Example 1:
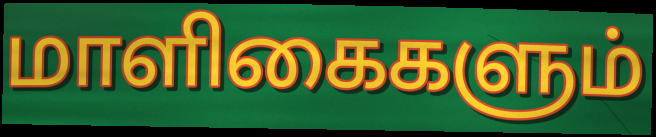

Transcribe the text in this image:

மாளிகைகளும்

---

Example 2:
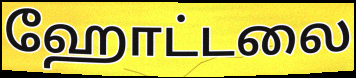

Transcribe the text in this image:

ஹோட்டலை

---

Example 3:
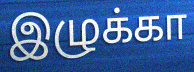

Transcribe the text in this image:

இழுக்கா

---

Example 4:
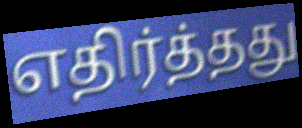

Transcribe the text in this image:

எதிர்த்தது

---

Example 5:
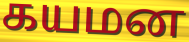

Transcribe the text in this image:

கயமன